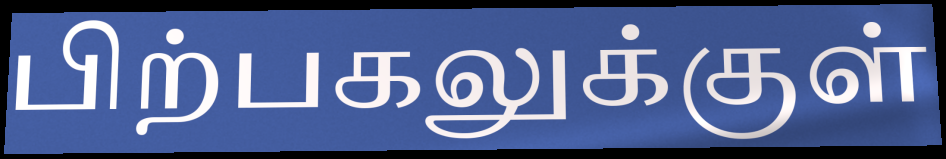
பிற்பகலுக்குள்